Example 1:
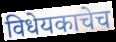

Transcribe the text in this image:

विधेयकाचेच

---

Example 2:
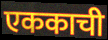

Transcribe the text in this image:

एककाची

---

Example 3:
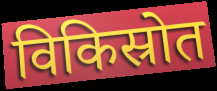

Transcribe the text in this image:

विकिस्रोत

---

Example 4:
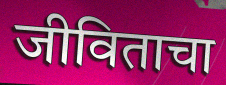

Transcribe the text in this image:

जीविताचा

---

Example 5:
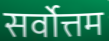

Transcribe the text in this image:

सर्वोत्तम